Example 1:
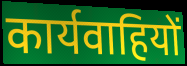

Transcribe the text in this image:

कार्यवाहियों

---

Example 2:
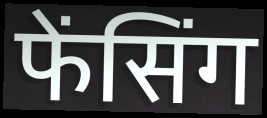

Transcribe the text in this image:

फेंसिंग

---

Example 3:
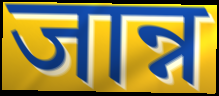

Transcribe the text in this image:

जान्न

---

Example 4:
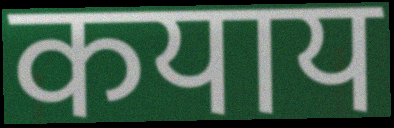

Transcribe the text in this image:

कयाय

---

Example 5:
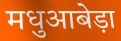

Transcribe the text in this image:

मधुआबेड़ा